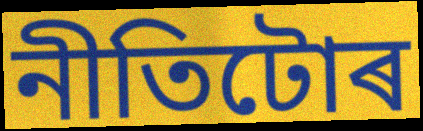
নীতিটোৰ